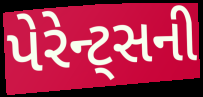
પેરેન્ટ્સની